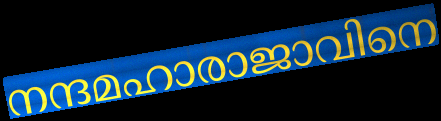
നന്ദമഹാരാജാവിനെ